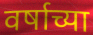
वर्षाच्या